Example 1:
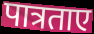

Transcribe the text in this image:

पात्रताए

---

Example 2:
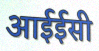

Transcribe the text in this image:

आईईसी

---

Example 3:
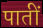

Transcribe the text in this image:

पातीं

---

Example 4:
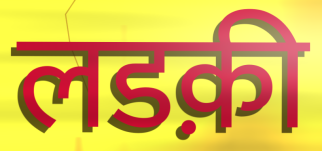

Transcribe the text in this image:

लडक़ी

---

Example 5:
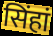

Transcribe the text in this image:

सिंहां